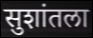
सुशांतला